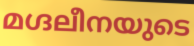
മഗ്ദലീനയുടെ